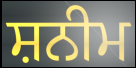
ਸ਼ਨੀਮ